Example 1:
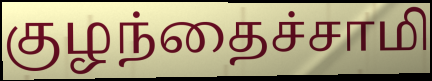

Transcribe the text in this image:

குழந்தைச்சாமி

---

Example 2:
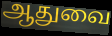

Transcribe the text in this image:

ஆதுவை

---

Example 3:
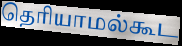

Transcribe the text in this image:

தெரியாமல்கூட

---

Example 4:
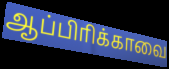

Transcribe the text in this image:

ஆப்பிரிக்காவை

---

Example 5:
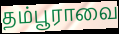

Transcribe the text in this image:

தம்பூராவை